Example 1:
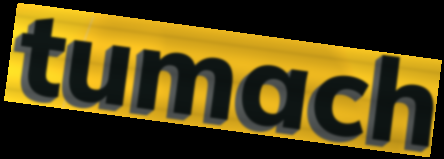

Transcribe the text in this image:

tumach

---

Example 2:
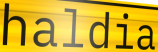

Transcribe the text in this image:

haldia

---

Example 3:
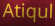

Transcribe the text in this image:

Atiqul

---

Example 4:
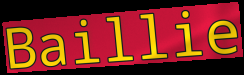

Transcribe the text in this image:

Baillie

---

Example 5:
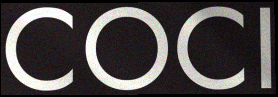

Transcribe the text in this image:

COCI